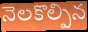
నెలకొల్పిన